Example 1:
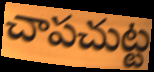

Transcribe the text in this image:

చాపచుట్ట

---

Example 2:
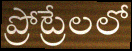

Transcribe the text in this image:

ప్రోట్రేలలో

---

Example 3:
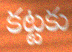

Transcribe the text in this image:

కట్టకు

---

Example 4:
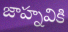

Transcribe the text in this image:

జాహ్నవికి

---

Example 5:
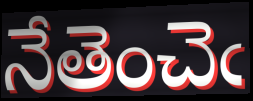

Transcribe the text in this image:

నేతెంచెఁ